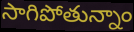
సాగిపోతున్నాం